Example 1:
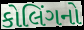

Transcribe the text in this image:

કોલિંગનો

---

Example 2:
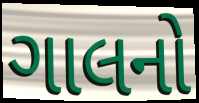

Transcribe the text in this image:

ગાલનો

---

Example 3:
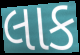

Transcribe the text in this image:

લાક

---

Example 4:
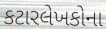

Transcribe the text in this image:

કટારલેખકોના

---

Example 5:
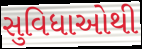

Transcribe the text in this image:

સુવિધાઓથી